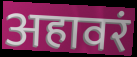
अहावरं